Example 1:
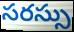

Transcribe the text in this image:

సరస్సు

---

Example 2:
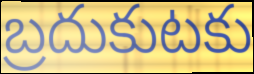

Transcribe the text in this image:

బ్రదుకుటకు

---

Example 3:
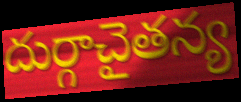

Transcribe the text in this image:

దుర్గాచైతన్య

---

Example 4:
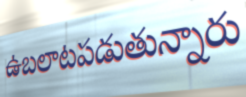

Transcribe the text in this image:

ఉబలాటపడుతున్నారు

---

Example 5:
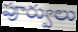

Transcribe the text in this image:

పూర్వులు